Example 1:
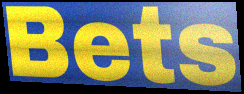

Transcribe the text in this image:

Bets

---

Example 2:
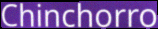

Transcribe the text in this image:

Chinchorro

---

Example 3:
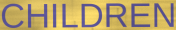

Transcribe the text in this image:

CHILDREN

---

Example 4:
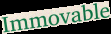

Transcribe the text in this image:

Immovable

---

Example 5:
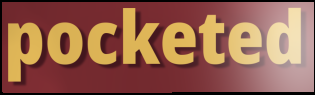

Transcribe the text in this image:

pocketed